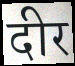
दीर